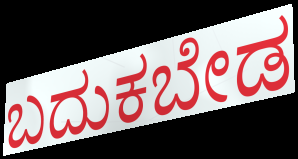
ಬದುಕಬೇಡ